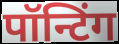
पॉन्टिंग